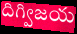
దిగ్విజయ